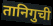
तानिगुची